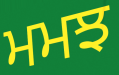
ਮਮਝ